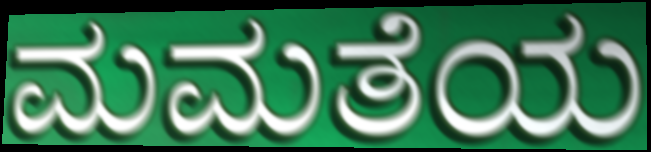
ಮಮತೆಯ